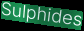
Sulphides